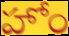
హోం